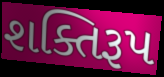
શક્તિરૂપ